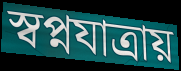
স্বপ্নযাত্রায়